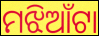
ମଝିଆଁଟା